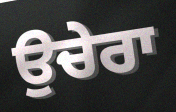
ਉਚੇਰਾ